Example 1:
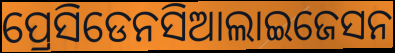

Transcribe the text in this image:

ପ୍ରେସିଡେନସିଆଲାଇଜେସନ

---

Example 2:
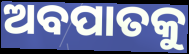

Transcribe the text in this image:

ଅବପାତକୁ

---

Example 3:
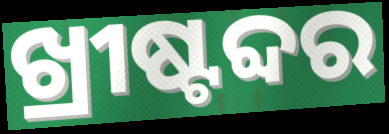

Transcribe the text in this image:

ଖ୍ରୀଷ୍ଟବ୍ଦର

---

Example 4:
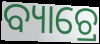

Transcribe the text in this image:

ବ୍ୟାଚ୍ରେ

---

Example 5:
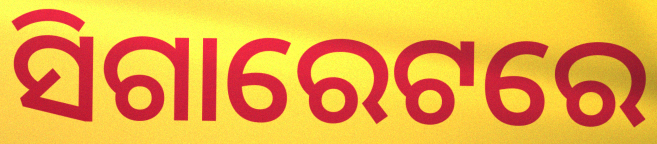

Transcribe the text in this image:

ସିଗାରେଟରେ